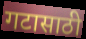
गटासाठी